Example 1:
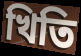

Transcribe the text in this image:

খিতি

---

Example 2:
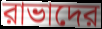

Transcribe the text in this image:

রাভাদের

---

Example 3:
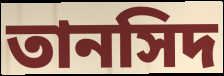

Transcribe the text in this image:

তানসিদ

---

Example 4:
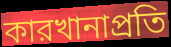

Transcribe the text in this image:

কারখানাপ্রতি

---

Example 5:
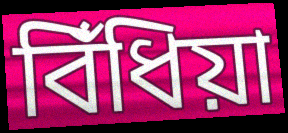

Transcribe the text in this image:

বিঁধিয়া